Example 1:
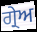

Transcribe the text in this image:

ਗ੍ਰੇਅ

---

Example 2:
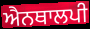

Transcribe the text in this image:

ਐਨਥਾਲਪੀ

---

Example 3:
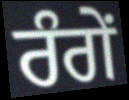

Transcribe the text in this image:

ਰੰਗੇਂ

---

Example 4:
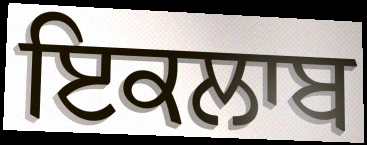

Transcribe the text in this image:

ਇਕਲਾਬ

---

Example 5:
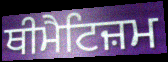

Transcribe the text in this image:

ਥੀਮੈਟਿਜ਼ਮ